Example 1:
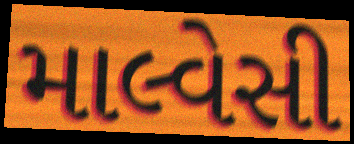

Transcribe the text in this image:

માલ્વેસી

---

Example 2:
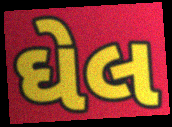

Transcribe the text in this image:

ઘેલ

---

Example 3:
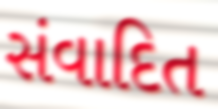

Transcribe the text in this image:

સંવાદિત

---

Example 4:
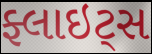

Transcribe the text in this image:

ફ્લાઇટ્સ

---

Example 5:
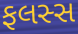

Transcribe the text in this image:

ફલસ્સ